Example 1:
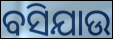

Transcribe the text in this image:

ବସିଯାଉ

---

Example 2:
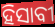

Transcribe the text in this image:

ହିସାବୀ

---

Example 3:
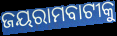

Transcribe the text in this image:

ଜୟରାମବାଟୀକୁ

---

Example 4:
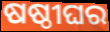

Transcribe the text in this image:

ଷଷ୍ଠୀଘର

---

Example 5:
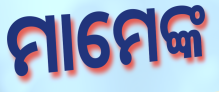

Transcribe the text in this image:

ମାମେଙ୍କ